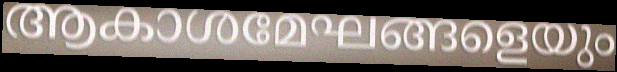
ആകാശമേഘങ്ങളെയും